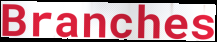
Branches